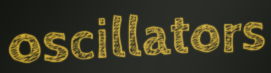
oscillators